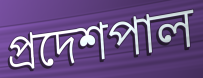
প্রদেশপাল